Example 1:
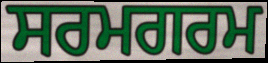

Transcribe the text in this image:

ਸਰਮਗਰਮ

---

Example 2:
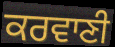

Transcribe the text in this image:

ਕਰਵਾਣੀ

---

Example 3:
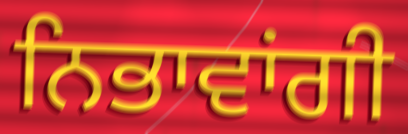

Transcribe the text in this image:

ਨਿਭਾਵਾਂਗੀ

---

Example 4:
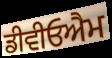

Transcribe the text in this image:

ਡੀਵੀਓਐਮ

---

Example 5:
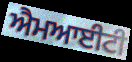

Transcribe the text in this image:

ਐਮਆਈਟੀ